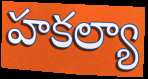
హకల్యా